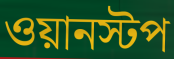
ওয়ানস্টপ